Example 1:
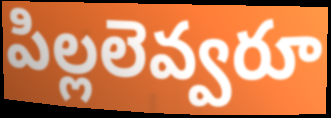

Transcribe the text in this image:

పిల్లలెవ్వరూ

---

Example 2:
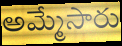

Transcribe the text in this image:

అమ్మేసారు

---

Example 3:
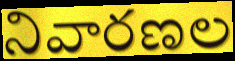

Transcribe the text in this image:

నివారణల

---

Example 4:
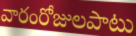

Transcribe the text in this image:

వారంరోజులపాటు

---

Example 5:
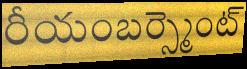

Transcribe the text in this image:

రీయంబర్స్మెంట్